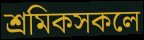
শ্ৰমিকসকলে